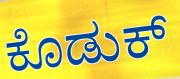
ಕೊಡುಕ್